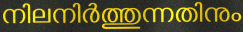
നിലനിർത്തുന്നതിനും